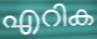
എറിക